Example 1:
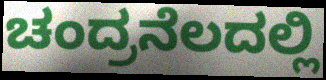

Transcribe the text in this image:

ಚಂದ್ರನೆಲದಲ್ಲಿ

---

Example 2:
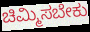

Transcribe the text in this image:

ಚಿಮ್ಮಿಸಬೇಕು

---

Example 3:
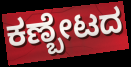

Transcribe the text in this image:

ಕಣ್ಬೇಟದ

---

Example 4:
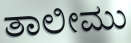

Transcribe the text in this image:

ತಾಲೀಮು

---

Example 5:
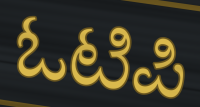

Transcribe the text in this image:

ಓಟಿಪಿ